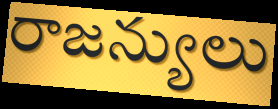
రాజన్యులు